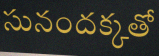
సునందక్కతో